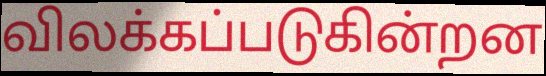
விலக்கப்படுகின்றன